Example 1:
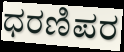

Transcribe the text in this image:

ಧರಣಿಪರ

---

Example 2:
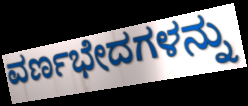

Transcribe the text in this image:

ವರ್ಣಭೇದಗಳನ್ನು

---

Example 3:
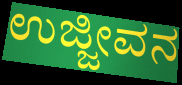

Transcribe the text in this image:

ಉಜ್ಜೀವನ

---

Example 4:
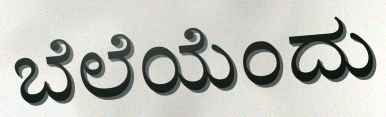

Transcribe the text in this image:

ಬೆಲೆಯೆಂದು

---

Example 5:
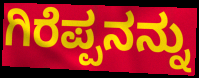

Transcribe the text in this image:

ಗಿರೆಪ್ಪನನ್ನು